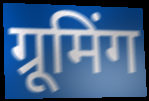
ग्रूमिंग